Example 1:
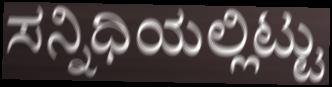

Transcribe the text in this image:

ಸನ್ನಿಧಿಯಲ್ಲಿಟ್ಟು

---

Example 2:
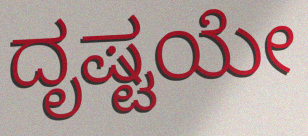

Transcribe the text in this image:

ದೃಷ್ಟಯೇ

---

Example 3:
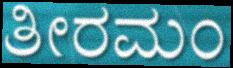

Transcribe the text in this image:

ತೀರಮಂ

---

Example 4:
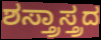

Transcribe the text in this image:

ಶಸ್ತ್ರಾಸ್ತ್ರದ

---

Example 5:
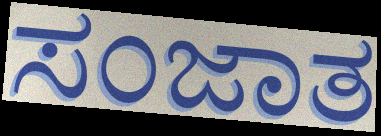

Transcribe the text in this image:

ಸಂಜಾತ